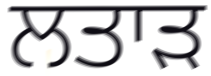
ਲਤਾੜ